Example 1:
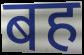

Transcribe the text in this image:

बह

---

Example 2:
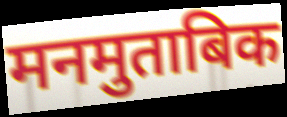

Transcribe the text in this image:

मनमुताबिक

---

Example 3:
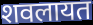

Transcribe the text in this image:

शवलायत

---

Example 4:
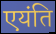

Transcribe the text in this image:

एयंति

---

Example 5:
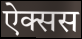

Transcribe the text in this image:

ऐक्सस